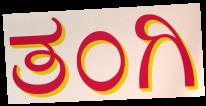
ತಂಗಿ